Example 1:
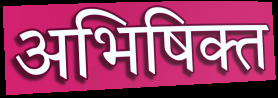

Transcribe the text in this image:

अभिषिक्त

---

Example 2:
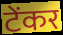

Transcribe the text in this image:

टेंकर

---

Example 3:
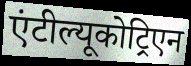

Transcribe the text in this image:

एंटील्यूकोट्रिएन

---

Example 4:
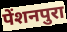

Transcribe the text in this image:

पेंशनपुरा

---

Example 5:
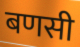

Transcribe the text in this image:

बणसी